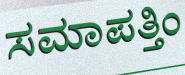
ಸಮಾಪತ್ತಿಂ